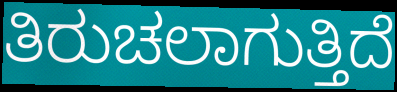
ತಿರುಚಲಾಗುತ್ತಿದೆ